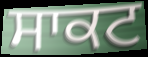
ਸਾਕਟ